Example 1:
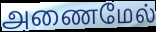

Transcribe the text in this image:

அணைமேல்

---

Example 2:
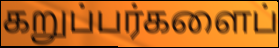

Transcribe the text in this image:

கறுப்பர்களைப்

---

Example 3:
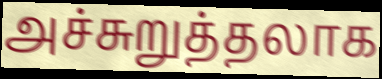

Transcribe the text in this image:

அச்சுறுத்தலாக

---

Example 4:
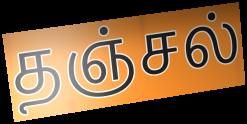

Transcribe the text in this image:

தஞ்சல்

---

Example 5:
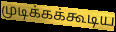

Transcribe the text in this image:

முடிக்கக்கூடிய